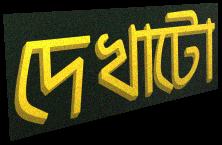
দেখাটো